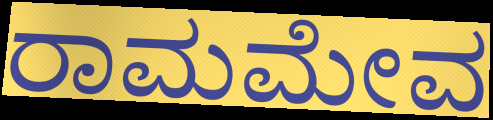
ರಾಮಮೇವ